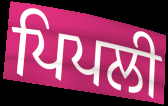
ਪਿਪਲੀ